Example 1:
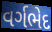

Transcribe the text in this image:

વર્ગભેદ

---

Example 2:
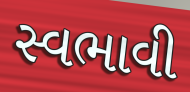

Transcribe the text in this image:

સ્વભાવી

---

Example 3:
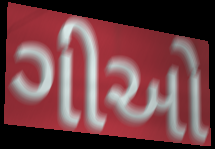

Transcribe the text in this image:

ગીઓ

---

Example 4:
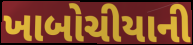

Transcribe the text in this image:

ખાબોચીયાની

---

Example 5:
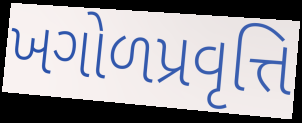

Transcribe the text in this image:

ખગોળપ્રવૃત્તિ